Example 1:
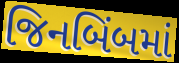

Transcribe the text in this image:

જિનબિંબમાં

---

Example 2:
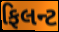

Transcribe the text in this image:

ફિલન્ટ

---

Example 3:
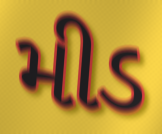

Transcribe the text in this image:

મીડ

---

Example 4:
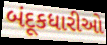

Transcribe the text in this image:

બંદૂકધારીઓ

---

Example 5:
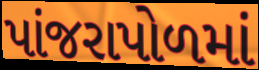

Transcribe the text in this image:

પાંજરાપોળમાં